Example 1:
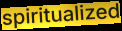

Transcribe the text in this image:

spiritualized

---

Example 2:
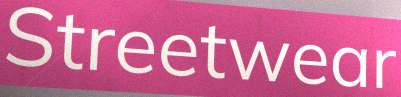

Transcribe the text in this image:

Streetwear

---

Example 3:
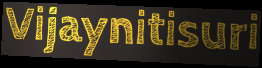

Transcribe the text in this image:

Vijaynitisuri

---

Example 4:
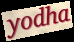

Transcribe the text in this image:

yodha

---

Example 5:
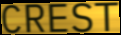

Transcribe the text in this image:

CREST